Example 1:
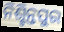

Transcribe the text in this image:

ନିଶ୍ଚିନ୍ତପୁର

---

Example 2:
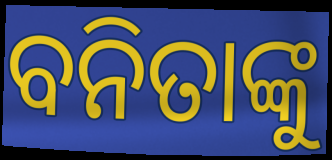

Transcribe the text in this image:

ବନିତାଙ୍କୁ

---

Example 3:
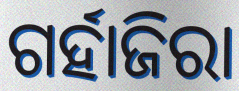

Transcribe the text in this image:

ଗର୍ହାଜିରା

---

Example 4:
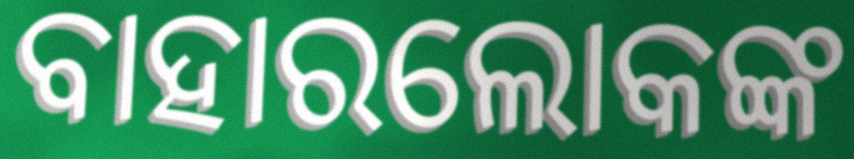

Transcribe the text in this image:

ବାହାରଲୋକଙ୍କ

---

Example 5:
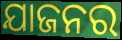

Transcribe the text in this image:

ଯାଜନର